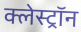
क्लेस्ट्रॉन